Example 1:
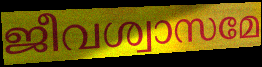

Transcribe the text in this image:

ജീവശ്വാസമേ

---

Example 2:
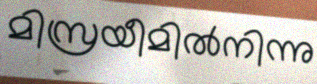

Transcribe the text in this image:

മിസ്രയീമിൽനിന്നു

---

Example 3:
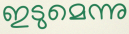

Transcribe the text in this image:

ഇടുമെന്നു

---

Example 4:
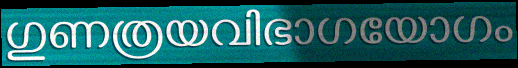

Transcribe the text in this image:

ഗുണത്രയവിഭാഗയോഗം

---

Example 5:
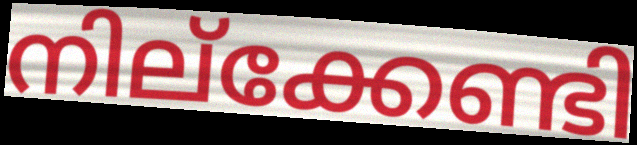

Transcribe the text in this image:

നില്ക്കേണ്ടി